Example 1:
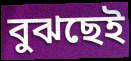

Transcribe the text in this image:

বুঝছেই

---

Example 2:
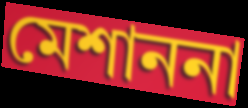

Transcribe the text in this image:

মেশাননা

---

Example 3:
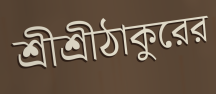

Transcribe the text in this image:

শ্রীশ্রীঠাকুরের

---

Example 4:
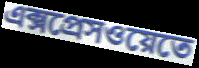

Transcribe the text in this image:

এক্সপ্রেসওয়েতে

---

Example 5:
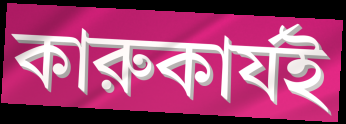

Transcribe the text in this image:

কারুকার্যই